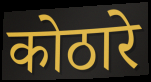
कोठारे